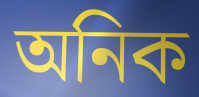
অনিক